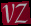
vz